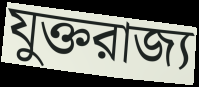
যুক্তরাজ্য